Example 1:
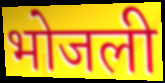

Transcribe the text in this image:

भोजली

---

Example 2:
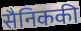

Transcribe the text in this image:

सैनिककी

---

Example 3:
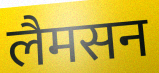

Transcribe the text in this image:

लैमसन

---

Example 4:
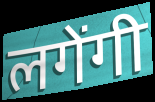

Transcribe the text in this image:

लगेंगी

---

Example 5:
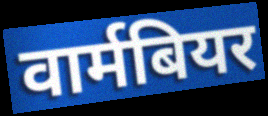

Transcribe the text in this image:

वार्मबियर